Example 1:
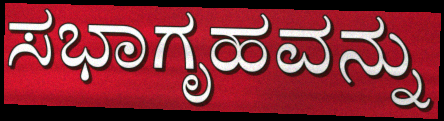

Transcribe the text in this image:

ಸಭಾಗೃಹವನ್ನು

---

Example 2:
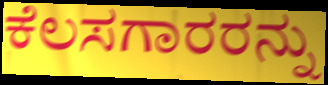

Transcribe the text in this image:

ಕೆಲಸಗಾರರನ್ನು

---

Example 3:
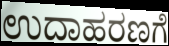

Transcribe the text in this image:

ಉದಾಹರಣಗೆ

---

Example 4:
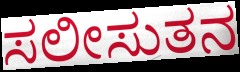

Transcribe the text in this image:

ಸಲೀಸುತನ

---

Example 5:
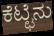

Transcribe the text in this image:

ಕೆಟ್ಟೆನು